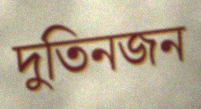
দুতিনজন